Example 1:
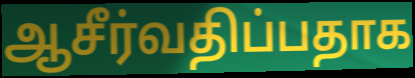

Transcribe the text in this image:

ஆசீர்வதிப்பதாக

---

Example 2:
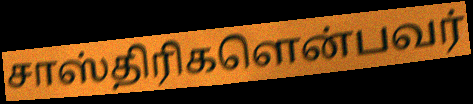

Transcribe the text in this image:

சாஸ்திரிகளென்பவர்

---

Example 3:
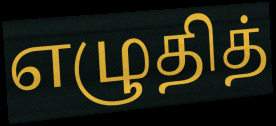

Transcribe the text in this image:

எழுதித்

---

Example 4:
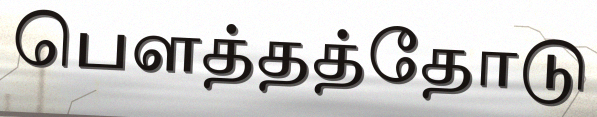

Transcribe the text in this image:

பௌத்தத்தோடு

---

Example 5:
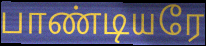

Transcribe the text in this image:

பாண்டியரே